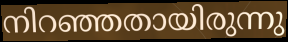
നിറഞ്ഞതായിരുന്നു